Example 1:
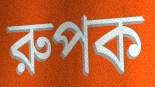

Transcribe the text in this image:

রুপক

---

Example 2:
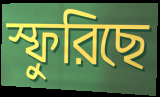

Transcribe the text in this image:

স্ফুরিছে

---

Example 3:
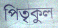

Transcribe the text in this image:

পিতৃকুল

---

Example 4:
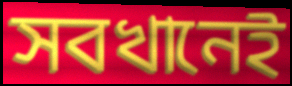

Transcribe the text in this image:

সবখানেই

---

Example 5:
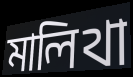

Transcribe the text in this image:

মালিথা